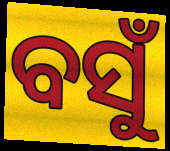
ବସୁଁ